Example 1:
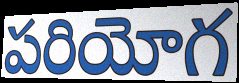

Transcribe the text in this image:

పరియోగ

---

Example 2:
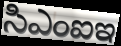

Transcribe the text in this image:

సిఎంఐఇ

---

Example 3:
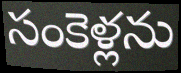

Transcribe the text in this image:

సంకెళ్లను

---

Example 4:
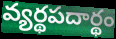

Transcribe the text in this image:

వ్యర్థపదార్థం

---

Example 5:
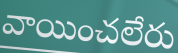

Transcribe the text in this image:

వాయించలేరు